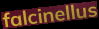
falcinellus